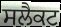
ਸਲੈਕਟ